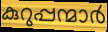
കുറുപ്പന്മാർ